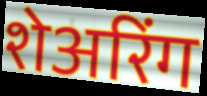
शेअरिंग